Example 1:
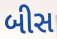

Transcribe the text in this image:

બીસ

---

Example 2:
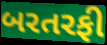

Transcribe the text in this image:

બરતરફી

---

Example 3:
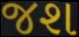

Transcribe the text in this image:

જશ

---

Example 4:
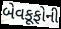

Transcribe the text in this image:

બેવકૂફોની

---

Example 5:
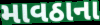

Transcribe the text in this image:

માવઠાના